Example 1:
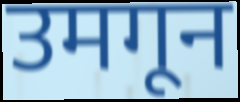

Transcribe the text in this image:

उमगून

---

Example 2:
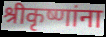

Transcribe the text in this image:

श्रीकृष्णांना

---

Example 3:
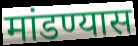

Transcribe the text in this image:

मांडण्यास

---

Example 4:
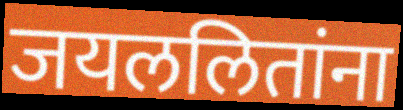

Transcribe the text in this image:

जयललितांना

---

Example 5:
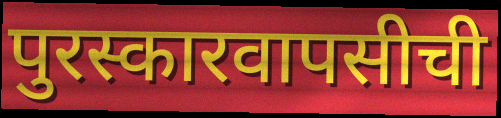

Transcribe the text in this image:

पुरस्कारवापसीची